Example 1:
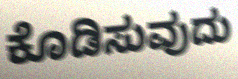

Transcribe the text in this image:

ಕೊಡಿಸುವುದು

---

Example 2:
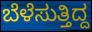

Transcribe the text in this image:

ಬೆಳೆಸುತ್ತಿದ್ದ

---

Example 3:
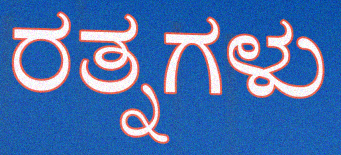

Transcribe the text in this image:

ರತ್ನಗಳು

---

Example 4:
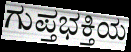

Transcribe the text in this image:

ಗುಪ್ತಭಕ್ತಿಯ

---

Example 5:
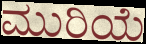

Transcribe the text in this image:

ಮುರಿಯೆ